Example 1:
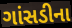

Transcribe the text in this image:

ગાંસડીના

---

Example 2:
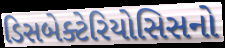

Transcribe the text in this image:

ડિસબેક્ટેરિયોસિસનો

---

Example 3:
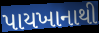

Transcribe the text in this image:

પાયખાનાથી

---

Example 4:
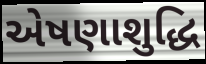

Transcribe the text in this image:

એષણાશુદ્ધિ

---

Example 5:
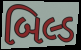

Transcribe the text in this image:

બિલ્ડ